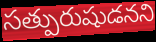
సత్పురుషుడనని